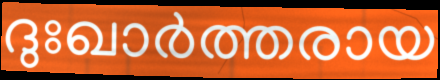
ദുഃഖാർത്തരായ